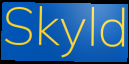
Skyld